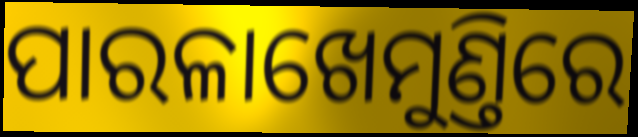
ପାରଳାଖେମୁଣ୍ତିରେ